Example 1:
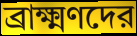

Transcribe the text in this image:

ব্রাক্ষ্মণদের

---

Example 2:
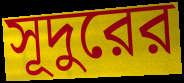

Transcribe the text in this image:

সূদুরের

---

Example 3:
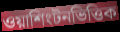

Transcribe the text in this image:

ওয়াশিংটনভিত্তিক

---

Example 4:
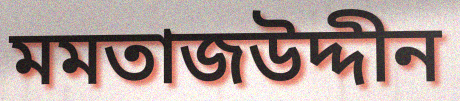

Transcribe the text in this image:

মমতাজউদ্দীন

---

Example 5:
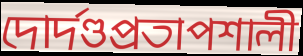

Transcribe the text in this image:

দোর্দণ্ডপ্রতাপশালী